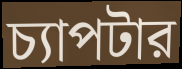
চ্যাপটার